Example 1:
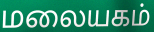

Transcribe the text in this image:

மலையகம்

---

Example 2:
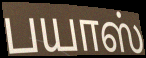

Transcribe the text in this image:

பயாஸ்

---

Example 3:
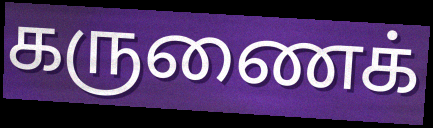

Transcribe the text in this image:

கருணைக்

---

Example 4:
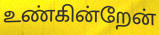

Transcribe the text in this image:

உண்கின்றேன்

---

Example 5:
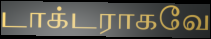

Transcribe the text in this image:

டாக்டராகவே